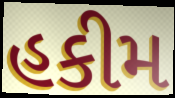
હકીમ